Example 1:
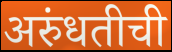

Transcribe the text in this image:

अरुंधतीची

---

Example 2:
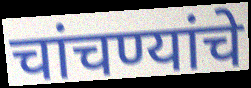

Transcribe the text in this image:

चांचण्यांचे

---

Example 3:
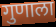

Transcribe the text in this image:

गुणाला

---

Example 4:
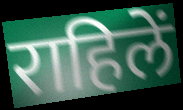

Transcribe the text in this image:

राहिलें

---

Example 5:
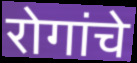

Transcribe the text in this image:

रोगांचे